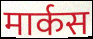
मार्कस